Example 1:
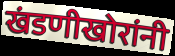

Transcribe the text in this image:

खंडणीखोरांनी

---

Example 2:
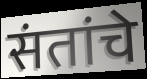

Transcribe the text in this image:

संतांचे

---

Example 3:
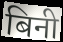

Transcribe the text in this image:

बिनी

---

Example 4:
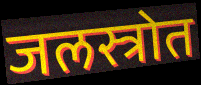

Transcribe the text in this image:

जलस्त्रोत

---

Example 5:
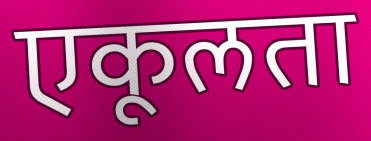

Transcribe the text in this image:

एकूलता